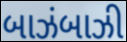
બાઝંબાઝી